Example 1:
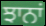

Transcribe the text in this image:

ਝਾਨਾਂ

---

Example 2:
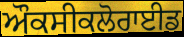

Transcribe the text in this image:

ਔਕਸੀਕਲੋਰਾਈਡ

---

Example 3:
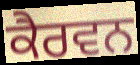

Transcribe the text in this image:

ਕੈਰਵਨ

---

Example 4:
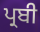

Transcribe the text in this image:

ਪ੍ਰਬੀ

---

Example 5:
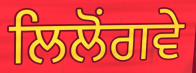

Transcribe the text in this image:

ਲਿਲੋਂਗਵੇ